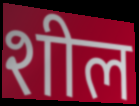
शील